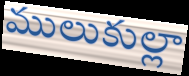
ములుకుల్లా